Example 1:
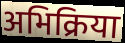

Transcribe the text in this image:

अभिक्रिया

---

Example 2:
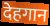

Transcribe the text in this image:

देहगान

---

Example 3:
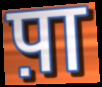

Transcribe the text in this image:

प़ा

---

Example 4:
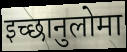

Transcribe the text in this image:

इच्छानुलोमा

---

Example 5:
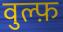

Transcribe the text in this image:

वुल्फ़